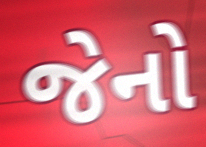
જેનો